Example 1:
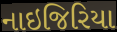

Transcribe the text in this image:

નાઇજિરિયા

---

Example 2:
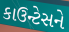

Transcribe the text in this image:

કાઉન્ટેસને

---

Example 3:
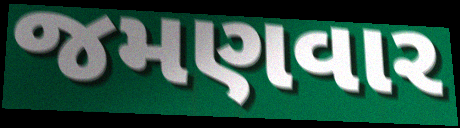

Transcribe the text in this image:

જમણવાર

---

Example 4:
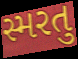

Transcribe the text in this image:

સ્મરતુ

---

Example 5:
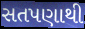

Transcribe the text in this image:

સતપણાથી